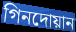
গিনদোয়ান